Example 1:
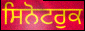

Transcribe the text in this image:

ਸਿਨੋਟਰੁਕ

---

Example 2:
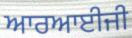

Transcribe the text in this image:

ਆਰਆਈਜੀ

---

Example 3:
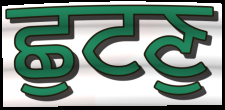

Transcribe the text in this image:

ਛੁਟਣੁ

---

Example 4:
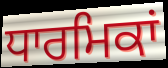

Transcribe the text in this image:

ਧਾਰਮਿਕਾਂ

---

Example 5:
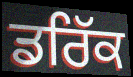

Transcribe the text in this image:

ਡਰਿੱਕ